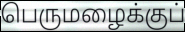
பெருமழைக்குப்